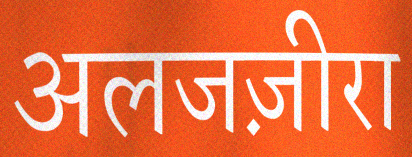
अलजज़ीरा